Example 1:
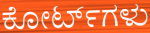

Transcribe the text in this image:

ಕೋರ್ಟ್‌ಗಳು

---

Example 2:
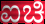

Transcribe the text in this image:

ಐಚಿ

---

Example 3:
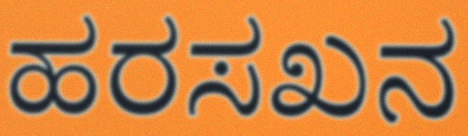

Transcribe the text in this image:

ಹರಸಖನ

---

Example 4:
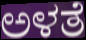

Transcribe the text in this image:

ಅಳತೆ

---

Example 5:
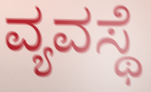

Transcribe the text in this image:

ವ್ಯವಸ್ಥೆ